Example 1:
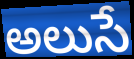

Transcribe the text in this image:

అలుసే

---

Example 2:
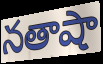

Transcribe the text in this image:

నతాషా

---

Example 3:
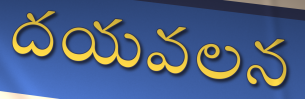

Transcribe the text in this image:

దయవలన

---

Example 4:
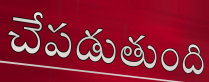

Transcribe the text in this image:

చేపడుతుంది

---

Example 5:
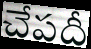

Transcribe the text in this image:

చేపదీ